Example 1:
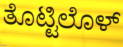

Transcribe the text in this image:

ತೊಟ್ಟಿಲೊಳ್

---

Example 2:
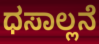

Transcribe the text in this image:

ಧಸಾಲ್ಲನೆ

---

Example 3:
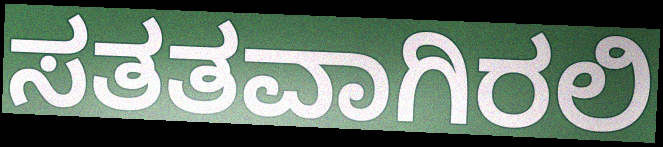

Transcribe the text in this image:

ಸತತವಾಗಿರಲಿ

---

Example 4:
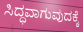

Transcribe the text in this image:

ಸಿದ್ಧವಾಗುವುದಕ್ಕೆ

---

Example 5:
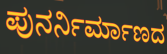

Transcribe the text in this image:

ಪುನರ್ನಿರ್ಮಾಣದ